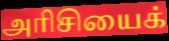
அரிசியைக்